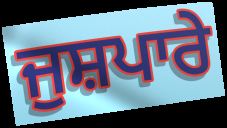
ਜੁਸ਼ਪਾਰੇ